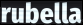
rubella